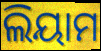
ଲିୟାମ